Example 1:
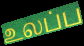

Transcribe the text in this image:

உலப்ப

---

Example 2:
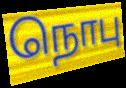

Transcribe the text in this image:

நொபு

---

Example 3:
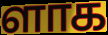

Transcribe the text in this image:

ளாக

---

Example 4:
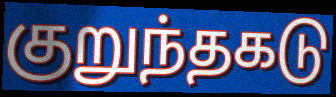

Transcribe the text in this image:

குறுந்தகடு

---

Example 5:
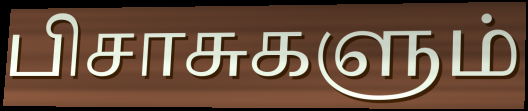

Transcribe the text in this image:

பிசாசுகளும்